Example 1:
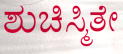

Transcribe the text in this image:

ಶುಚಿಸ್ಮಿತೇ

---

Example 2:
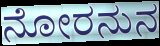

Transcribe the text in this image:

ನೋರನುನ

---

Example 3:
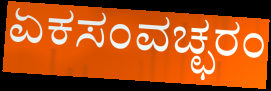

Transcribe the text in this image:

ಏಕಸಂವಚ್ಛರಂ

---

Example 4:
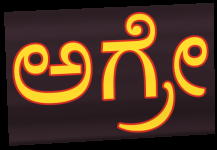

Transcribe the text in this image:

ಅಗ್ರೇ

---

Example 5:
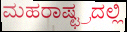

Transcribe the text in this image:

ಮಹರಾಷ್ಟ್ರದಲ್ಲಿ